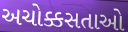
અચોક્કસતાઓ